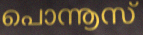
പൊന്നൂസ്